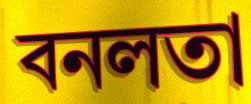
বনলতা